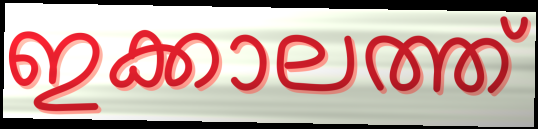
ഇക്കാലത്ത്